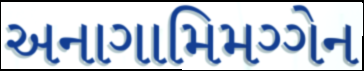
અનાગામિમગ્ગેન